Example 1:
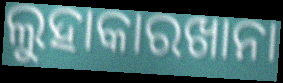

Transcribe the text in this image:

ଲୁହାକାରଖାନା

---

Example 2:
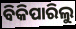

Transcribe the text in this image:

ବିକିପାରିଲୁ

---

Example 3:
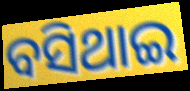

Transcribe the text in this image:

ବସିଥାଇ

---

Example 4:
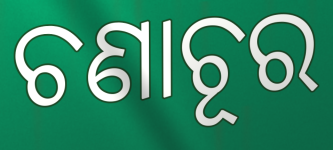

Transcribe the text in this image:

ଚଣାଚୂର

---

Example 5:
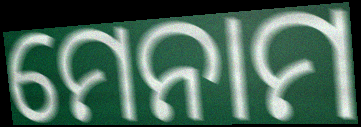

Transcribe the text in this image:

ମେନାମ